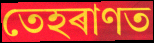
তেহৰাণত